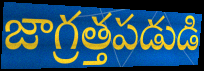
జాగ్రత్తపడుడి